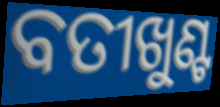
ବତୀଖୁଣ୍ଟ